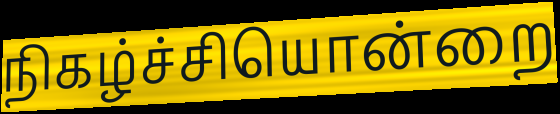
நிகழ்ச்சியொன்றை